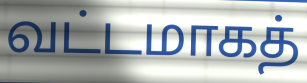
வட்டமாகத்